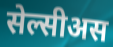
सेल्सीअस